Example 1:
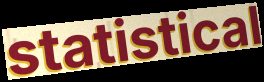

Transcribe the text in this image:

statistical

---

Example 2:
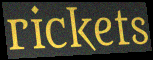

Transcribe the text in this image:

rickets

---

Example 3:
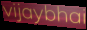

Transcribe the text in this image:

vijaybhai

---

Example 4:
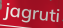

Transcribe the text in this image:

jagruti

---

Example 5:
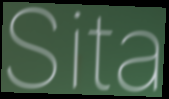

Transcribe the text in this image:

Sita